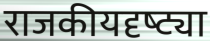
राजकीयदृष्ट्या